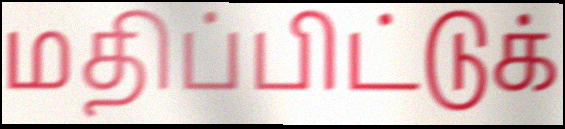
மதிப்பிட்டுக்